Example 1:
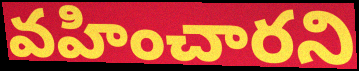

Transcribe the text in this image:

వహించారని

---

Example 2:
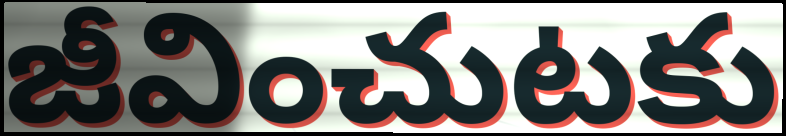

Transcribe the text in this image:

జీవించుటకు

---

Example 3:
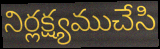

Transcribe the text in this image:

నిర్లక్ష్యముచేసి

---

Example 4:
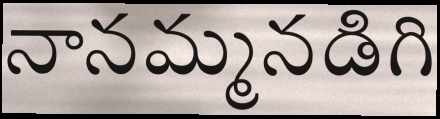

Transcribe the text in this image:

నానమ్మనడిగి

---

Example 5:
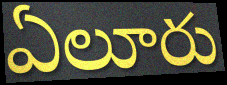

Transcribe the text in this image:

ఏలూరు